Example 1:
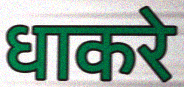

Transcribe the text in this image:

धाकरे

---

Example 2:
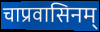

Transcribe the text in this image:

चाप्रवासिनम्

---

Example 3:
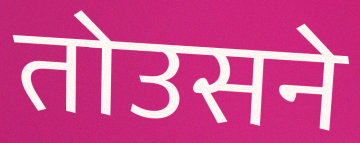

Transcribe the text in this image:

तोउसने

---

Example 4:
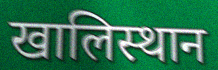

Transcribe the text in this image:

खालिस्थान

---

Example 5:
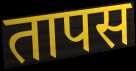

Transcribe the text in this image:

तापस